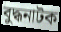
বুদ্ধনাটক